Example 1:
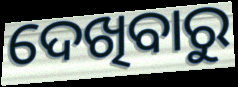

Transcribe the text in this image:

ଦେଖିବାରୁ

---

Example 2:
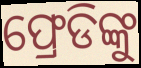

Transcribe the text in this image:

ଫ୍ରେଡିଙ୍କୁ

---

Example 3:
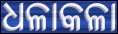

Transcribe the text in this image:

ଧଳାକଳା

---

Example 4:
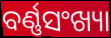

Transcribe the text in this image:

ବର୍ଣ୍ଣସଂଖ୍ୟା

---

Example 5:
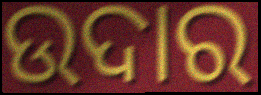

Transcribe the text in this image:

ଉଦାର